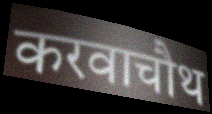
करवाचौथ